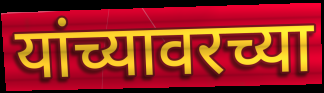
यांच्यावरच्या